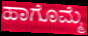
ಹಾಗೊಮ್ಮೆ